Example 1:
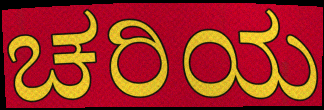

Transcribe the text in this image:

ಚರಿಯ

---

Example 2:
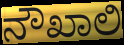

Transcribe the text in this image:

ನೌಖಾಲಿ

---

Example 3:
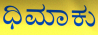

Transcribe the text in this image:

ಧಿಮಾಕು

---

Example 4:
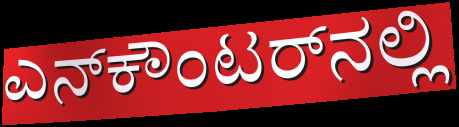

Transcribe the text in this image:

ಎನ್‌ಕೌಂಟರ್‌ನಲ್ಲಿ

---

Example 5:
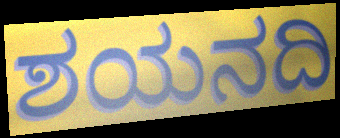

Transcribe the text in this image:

ಶಯನದಿ